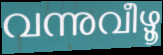
വന്നുവീഴൂ